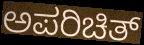
ಅಪರಿಚಿತ್